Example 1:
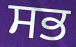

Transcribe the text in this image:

ਸਭ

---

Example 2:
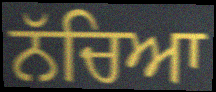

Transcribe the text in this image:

ਨੱਚਿਆ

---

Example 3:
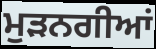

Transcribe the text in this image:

ਮੁੜਨਗੀਆਂ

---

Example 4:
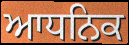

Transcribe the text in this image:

ਆਧਨਿਕ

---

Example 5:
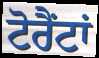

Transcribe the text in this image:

ਟੋਰੈਂਟਾਂ